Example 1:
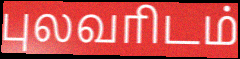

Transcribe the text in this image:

புலவரிடம்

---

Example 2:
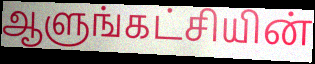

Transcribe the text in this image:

ஆளுங்கட்சியின்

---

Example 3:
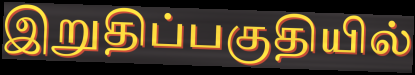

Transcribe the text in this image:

இறுதிப்பகுதியில்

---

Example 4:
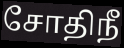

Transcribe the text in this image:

சோதிநீ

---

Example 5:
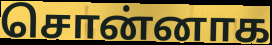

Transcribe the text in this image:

சொன்னாக